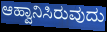
ಆಹ್ವಾನಿಸಿರುವುದು